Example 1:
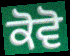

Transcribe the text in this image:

ਕੋਵੋ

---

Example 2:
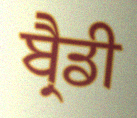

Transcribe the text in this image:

ਬ੍ਰੈਡੀ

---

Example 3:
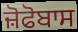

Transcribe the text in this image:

ਜ਼ੋਫੋਬਾਸ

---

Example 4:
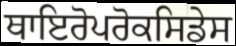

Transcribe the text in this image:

ਥਾਇਰੋਪਰੋਕਸਿਡੇਸ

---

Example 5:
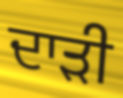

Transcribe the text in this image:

ਦਾੜੀ